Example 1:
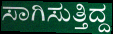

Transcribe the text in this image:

ಸಾಗಿಸುತ್ತಿದ್ದ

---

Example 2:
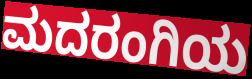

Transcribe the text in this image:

ಮದರಂಗಿಯ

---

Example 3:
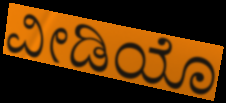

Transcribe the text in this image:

ವೀಡಿಯೊ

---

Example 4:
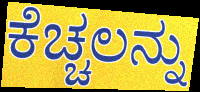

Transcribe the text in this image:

ಕೆಚ್ಚಲನ್ನು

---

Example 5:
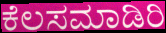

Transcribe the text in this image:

ಕೆಲಸಮಾಡಿರಿ